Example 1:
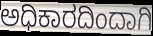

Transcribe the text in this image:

ಅಧಿಕಾರದಿಂದಾಗಿ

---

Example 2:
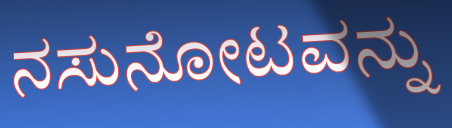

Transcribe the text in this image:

ನಸುನೋಟವನ್ನು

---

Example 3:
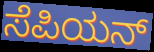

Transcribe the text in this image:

ಸೆಪಿಯನ್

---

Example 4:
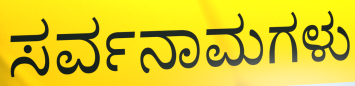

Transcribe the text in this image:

ಸರ್ವನಾಮಗಳು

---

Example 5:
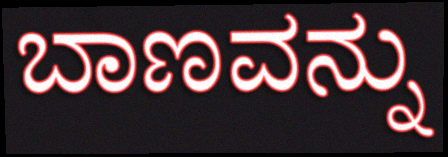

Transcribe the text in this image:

ಬಾಣವನ್ನು